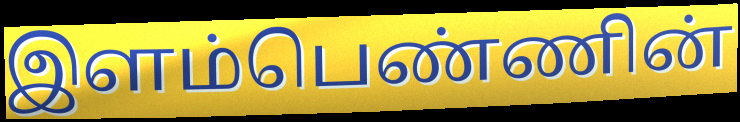
இளம்பெண்ணின்